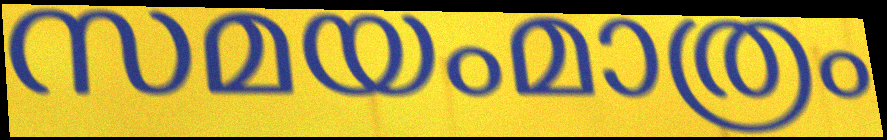
സമയംമാത്രം